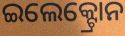
ଇଲେକ୍ଟ୍ରୋନ